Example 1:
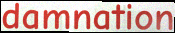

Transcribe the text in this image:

damnation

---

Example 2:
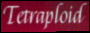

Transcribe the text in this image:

Tetraploid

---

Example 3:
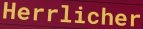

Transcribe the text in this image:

Herrlicher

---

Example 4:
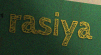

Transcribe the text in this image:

rasiya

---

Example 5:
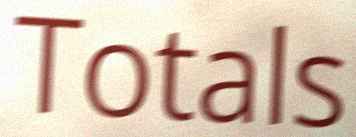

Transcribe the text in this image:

Totals